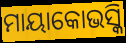
ମାୟାକୋଭସ୍କି